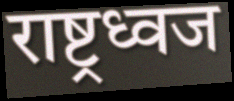
राष्ट्रध्वज